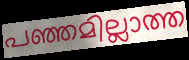
പഞ്ഞമില്ലാത്ത